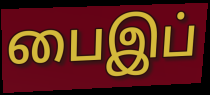
பைஇப்